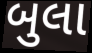
બુલા